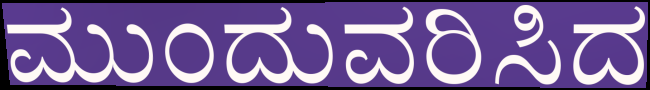
ಮುಂದುವರಿಸಿದ